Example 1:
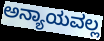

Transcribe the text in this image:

ಅನ್ಯಾಯವಲ್ಲ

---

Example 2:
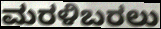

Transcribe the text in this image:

ಮರಳಿಬರಲು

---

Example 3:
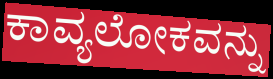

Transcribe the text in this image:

ಕಾವ್ಯಲೋಕವನ್ನು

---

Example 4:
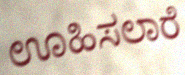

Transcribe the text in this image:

ಊಹಿಸಲಾರೆ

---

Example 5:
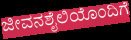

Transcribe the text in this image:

ಜೀವನಶೈಲಿಯೊಂದಿಗೆ